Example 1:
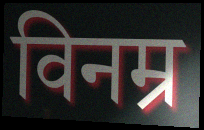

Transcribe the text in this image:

विनम्र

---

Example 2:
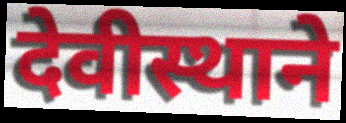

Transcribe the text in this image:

देवीस्थाने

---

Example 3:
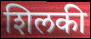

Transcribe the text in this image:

शिलकी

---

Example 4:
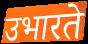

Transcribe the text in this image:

उभारते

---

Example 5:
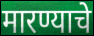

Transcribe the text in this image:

मारण्याचे